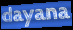
dayana